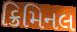
ક્રિમિનલ